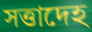
সত্তাদেহ